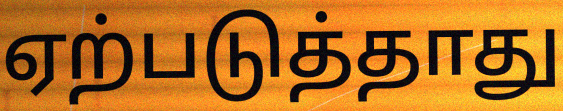
ஏற்படுத்தாது